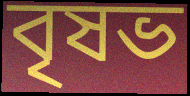
বৃষভ